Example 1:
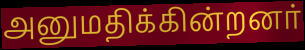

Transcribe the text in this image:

அனுமதிக்கின்றனர்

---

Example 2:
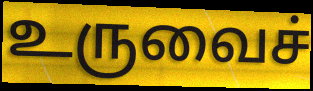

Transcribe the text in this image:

உருவைச்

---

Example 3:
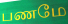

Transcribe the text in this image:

பணமே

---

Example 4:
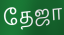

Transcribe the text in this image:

தேஜா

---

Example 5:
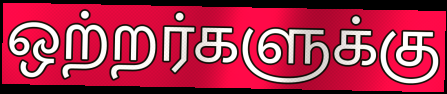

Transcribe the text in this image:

ஒற்றர்களுக்கு